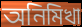
অনিমিখা